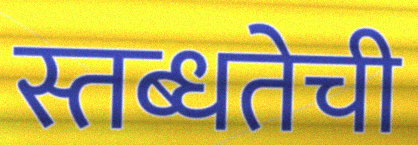
स्तब्धतेची